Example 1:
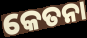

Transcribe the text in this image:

କେତନା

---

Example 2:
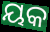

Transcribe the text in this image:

ୟକ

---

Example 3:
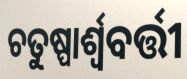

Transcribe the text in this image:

ଚତୁଷ୍ପାର୍ଶ୍ୱବର୍ତ୍ତୀ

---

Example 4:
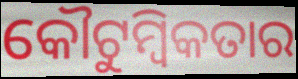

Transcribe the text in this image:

କୌଟୁମ୍ବିକତାର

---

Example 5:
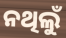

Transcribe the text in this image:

ନଥିଲୁଁ